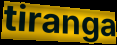
tiranga